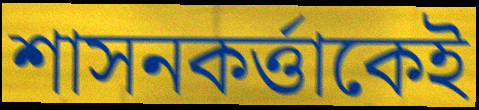
শাসনকর্ত্তাকেই